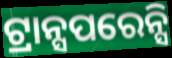
ଟ୍ରାନ୍ସପରେନ୍ସି